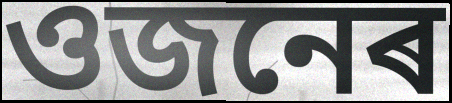
ওজনেৰ